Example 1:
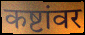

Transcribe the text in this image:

कष्टांवर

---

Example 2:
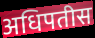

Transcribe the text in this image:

अधिपतीस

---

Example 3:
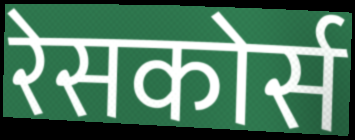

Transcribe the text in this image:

रेसकोर्स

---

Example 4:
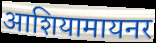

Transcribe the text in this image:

आशियामायनर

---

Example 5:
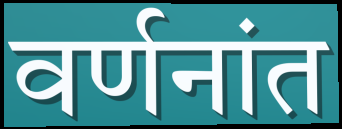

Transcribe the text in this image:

वर्णनांत